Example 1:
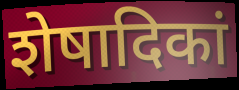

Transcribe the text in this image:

शेषादिकां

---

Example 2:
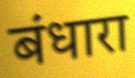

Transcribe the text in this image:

बंधारा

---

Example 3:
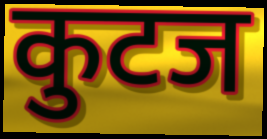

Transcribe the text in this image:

कुटज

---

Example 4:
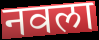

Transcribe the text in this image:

नवला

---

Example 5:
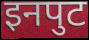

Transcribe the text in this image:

इनपुट